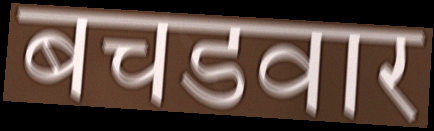
बचडवार